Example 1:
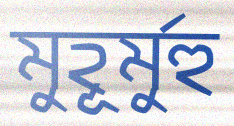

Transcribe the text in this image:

মুহূর্মুহু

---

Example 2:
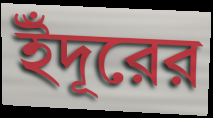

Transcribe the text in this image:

ইঁদূরের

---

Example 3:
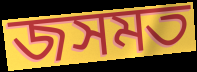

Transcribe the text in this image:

জসমত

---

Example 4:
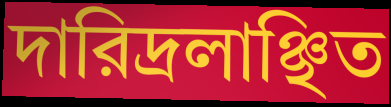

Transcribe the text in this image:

দারিদ্রলাঞ্ছিত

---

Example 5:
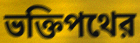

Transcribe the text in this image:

ভক্তিপথের